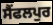
ਸੈਂਫਲਪੁਰ